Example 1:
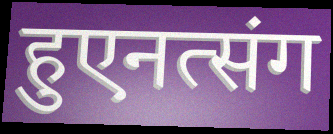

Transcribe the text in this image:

हुएनत्संग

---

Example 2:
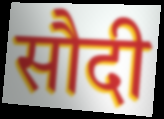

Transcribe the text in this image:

सौदी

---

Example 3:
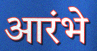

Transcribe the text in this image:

आरंभे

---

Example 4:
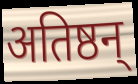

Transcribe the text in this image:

अतिष्ठन्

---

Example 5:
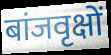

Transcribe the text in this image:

बांजवृक्षों